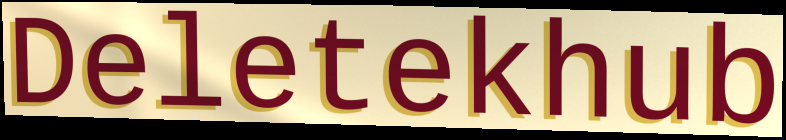
Deletekhub